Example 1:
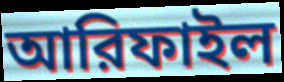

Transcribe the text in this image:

আরিফাইল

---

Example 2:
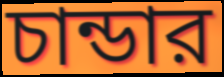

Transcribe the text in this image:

চান্ডার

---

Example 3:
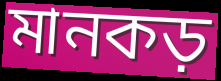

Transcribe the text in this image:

মানকড়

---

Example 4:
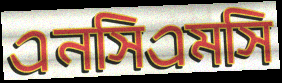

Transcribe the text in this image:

এনসিএমসি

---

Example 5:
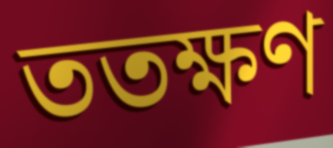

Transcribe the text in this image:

ততক্ষণ